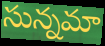
సున్నమా